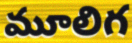
మూలిగ